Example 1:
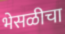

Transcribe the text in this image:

भेसळीचा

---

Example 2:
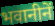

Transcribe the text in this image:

भवानीनें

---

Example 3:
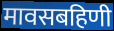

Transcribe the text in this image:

मावसबहिणी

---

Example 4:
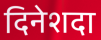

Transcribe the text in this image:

दिनेशदा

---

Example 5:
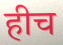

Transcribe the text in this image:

हीच